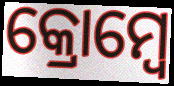
କ୍ରୋମ୍ବେ